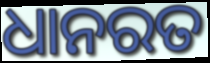
ଧାନରତ